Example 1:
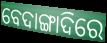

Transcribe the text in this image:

ବେଦାଙ୍ଗାଦିରେ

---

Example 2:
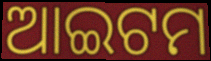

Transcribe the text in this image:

ଆଇଟମ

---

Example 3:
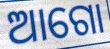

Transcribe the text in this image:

ଆଗୋ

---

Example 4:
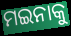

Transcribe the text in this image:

ମଇନାକୁ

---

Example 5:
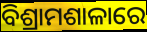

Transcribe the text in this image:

ବିଶ୍ରାମଶାଳାରେ